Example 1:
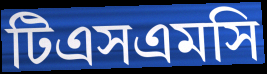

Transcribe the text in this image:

টিএসএমসি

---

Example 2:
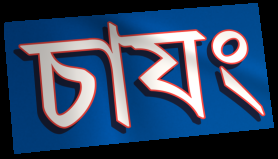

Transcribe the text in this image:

চাযং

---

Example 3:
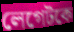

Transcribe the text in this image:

লেগেটকে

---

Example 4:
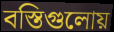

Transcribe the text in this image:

বস্তিগুলোয়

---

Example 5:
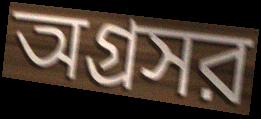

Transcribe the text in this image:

অগ্রসর